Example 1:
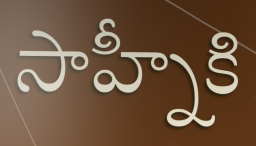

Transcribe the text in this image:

సాహ్నీకి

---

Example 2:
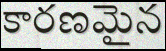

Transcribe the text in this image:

కారణమైన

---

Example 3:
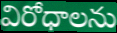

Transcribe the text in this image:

విరోధాలను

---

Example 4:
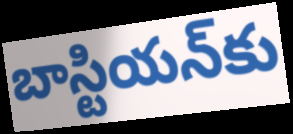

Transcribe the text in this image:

బాస్టియన్‌కు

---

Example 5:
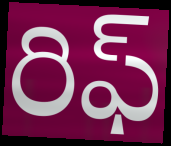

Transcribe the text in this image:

రిఫ్